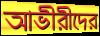
আভীরীদের